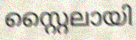
സ്റ്റൈലായി